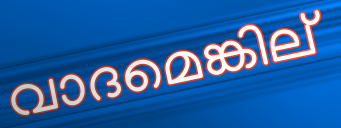
വാദമെങ്കില്